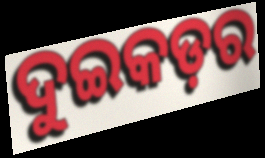
ଦୁଇକଡ଼ର